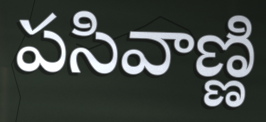
పసివాణ్ణి